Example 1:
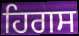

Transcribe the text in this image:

ਹਿਗਸ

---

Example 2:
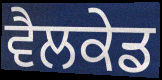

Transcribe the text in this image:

ਵੈਲਕੇਡ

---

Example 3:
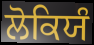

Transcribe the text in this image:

ਲੋਕਿਯੰ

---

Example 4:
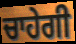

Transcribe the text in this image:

ਚਾਹੇਗੀ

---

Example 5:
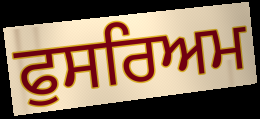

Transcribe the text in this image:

ਫੁਸਰਿਅਮ